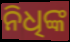
ନିଧିଙ୍କ